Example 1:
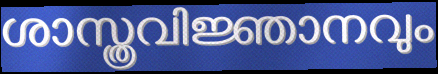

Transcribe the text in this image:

ശാസ്ത്രവിജ്ഞാനവും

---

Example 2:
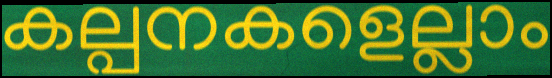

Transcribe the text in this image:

കല്പനകളെല്ലാം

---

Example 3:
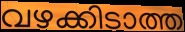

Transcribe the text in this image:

വഴക്കിടാത്ത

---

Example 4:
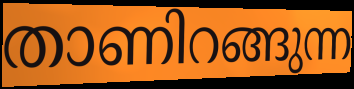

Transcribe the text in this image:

താണിറങ്ങുന്ന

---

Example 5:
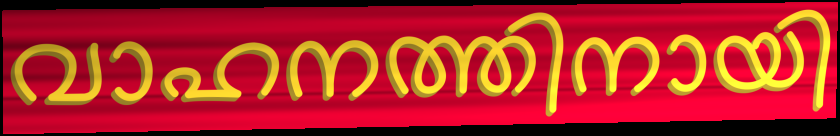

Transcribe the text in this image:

വാഹനത്തിനായി